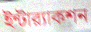
ইন্টার‍্যাকশন